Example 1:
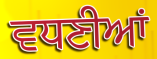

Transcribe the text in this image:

ਵਧਣੀਆਂ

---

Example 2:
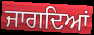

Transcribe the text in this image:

ਜਾਗਦਿਆਂ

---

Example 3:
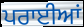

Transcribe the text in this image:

ਪਰਾਈਆਂ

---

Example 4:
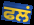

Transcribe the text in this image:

ਫਲਂ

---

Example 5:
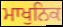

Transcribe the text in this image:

ਮਾਖੁਨਿਕ